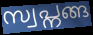
സ്വപ്നങ്ങ